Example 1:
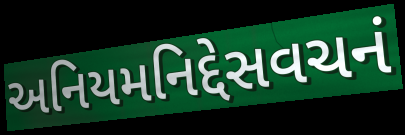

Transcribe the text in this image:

અનિયમનિદ્દેસવચનં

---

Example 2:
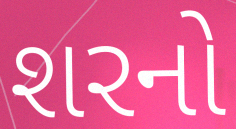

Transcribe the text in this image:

શરનો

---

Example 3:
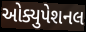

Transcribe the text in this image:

ઓક્યુપેશનલ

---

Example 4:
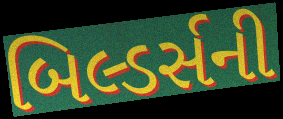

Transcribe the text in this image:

બિલ્ડર્સની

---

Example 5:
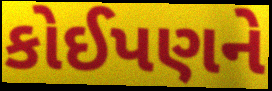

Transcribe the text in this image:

કોઈપણને